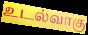
உடல்வாகு